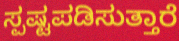
ಸ್ಪಷ್ಟಪಡಿಸುತ್ತಾರೆ